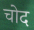
चोद